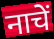
नाचें